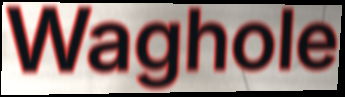
Waghole